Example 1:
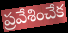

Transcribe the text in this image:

ప్రవేశించేక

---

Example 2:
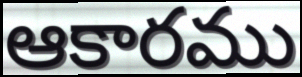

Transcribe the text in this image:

ఆకారము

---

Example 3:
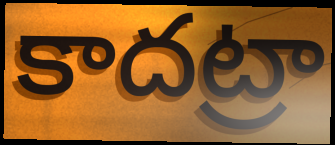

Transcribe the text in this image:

కాదట్రా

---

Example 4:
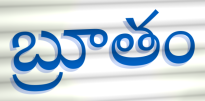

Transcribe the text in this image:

బ్రూతం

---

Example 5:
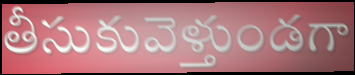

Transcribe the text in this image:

తీసుకువెళ్తుండగా